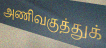
அணிவகுத்துக்